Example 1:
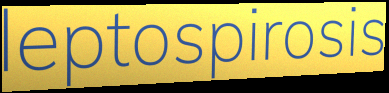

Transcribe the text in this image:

leptospirosis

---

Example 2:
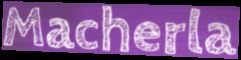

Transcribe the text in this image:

Macherla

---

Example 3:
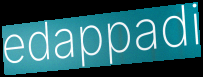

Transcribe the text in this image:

edappadi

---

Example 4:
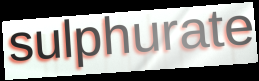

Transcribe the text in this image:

sulphurate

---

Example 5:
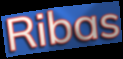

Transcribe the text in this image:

Ribas